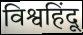
विश्वहिंदू